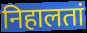
निहालतां